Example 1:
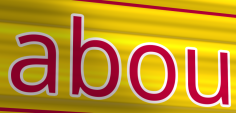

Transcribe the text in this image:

abou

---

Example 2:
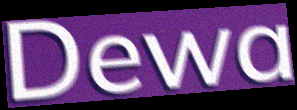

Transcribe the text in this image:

Dewa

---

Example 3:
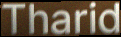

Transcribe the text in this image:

Tharid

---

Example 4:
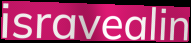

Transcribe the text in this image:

isravealin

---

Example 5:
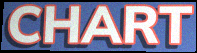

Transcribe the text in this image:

CHART